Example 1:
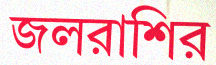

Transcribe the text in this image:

জলরাশির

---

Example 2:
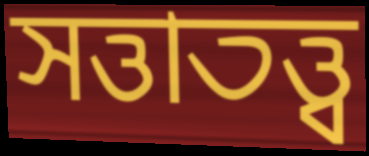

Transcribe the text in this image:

সত্তাতত্ত্ব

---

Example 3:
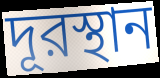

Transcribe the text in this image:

দূরস্থান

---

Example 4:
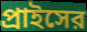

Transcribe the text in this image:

প্রাইসের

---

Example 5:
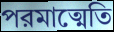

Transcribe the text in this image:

পরমাত্মেতি